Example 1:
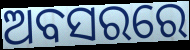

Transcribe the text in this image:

ଅବସରରେ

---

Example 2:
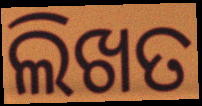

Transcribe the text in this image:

ଲିଖତ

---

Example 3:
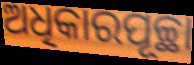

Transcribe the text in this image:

ଅଧିକାରପୂଚ୍ଛା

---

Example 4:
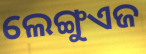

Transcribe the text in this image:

ଲେଙ୍ଗୁଏଜ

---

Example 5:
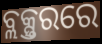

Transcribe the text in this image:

ବ୍ଲକ୍ସ୍ତରରେ